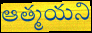
ఆత్మయని